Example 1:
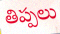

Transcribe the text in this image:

తిప్పలు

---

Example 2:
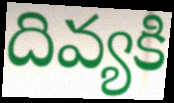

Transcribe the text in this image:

దివ్యకి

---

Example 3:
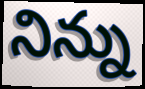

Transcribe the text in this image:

నిన్ను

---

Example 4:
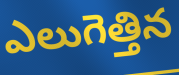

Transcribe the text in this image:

ఎలుగెత్తిన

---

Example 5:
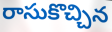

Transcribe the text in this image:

రాసుకొచ్చిన